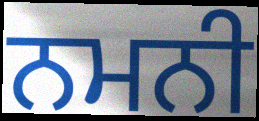
ਨਮਨੀ